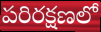
పరిరక్షణలో